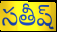
సతీష్